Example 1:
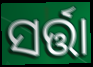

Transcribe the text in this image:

ସର୍ତ୍ତା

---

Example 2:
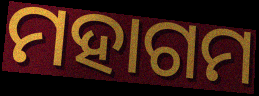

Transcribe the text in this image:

ମହାଗମ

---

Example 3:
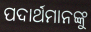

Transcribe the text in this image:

ପଦାର୍ଥମାନଙ୍କୁ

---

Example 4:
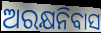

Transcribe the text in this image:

ଅରକ୍ଷନିବାସ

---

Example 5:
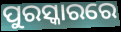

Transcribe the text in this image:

ପୁରସ୍କାରରେ